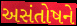
અસંતોષને